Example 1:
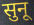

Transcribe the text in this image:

सुनू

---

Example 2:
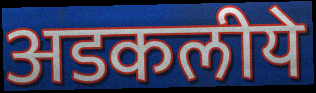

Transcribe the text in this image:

अडकलीये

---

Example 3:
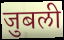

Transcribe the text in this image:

जुबली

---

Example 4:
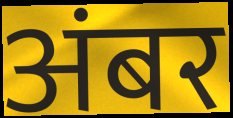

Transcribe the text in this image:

अंबर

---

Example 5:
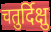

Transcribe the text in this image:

चतुर्दिक्षु